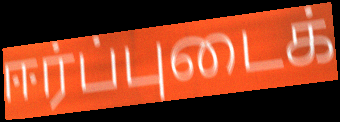
ஈர்ப்புடைக்